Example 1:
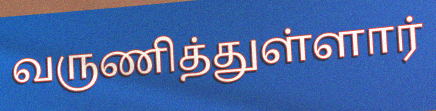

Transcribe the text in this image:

வருணித்துள்ளார்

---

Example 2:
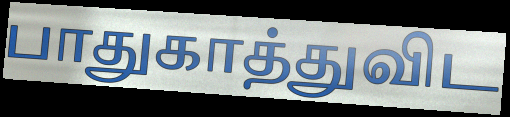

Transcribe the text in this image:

பாதுகாத்துவிட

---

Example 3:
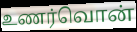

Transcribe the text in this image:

உணர்வொன்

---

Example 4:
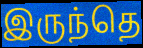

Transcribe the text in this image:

இருந்தெ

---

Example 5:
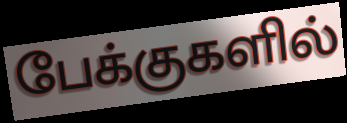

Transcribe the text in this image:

பேக்குகளில்